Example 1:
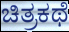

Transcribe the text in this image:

ಚಿತ್ರಕಥೆ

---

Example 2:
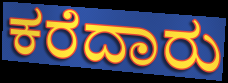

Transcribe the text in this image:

ಕರೆದಾರು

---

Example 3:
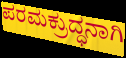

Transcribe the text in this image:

ಪರಮಕ್ರುದ್ಧನಾಗಿ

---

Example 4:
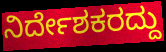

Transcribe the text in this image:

ನಿರ್ದೇಶಕರದ್ದು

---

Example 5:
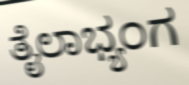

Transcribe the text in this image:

ತೈಲಾಭ್ಯಂಗ